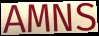
AMNS